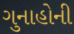
ગુનાહોની